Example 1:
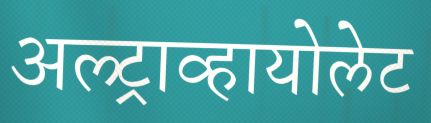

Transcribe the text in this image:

अल्ट्राव्हायोलेट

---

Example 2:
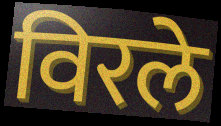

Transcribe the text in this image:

विरले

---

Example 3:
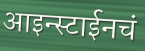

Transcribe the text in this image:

आइन्स्टाईनचं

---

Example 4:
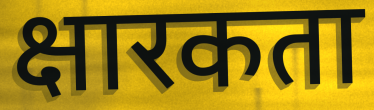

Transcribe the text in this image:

क्षारकता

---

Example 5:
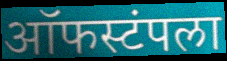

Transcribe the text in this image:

ऑफस्टंपला